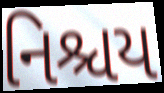
નિશ્ચય